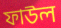
ফাউল